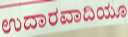
ಉದಾರವಾದಿಯೂ